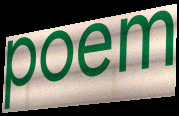
poem